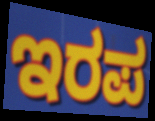
ಇರಪ